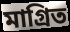
মাগ্রিত